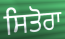
ਸਿਤੋਰਾ